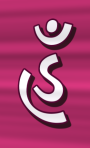
હઁ